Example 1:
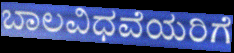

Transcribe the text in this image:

ಬಾಲವಿಧವೆಯರಿಗೆ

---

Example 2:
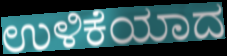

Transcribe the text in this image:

ಉಳಿಕೆಯಾದ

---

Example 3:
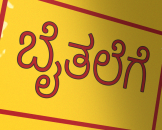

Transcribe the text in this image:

ಬೈತಲೆಗೆ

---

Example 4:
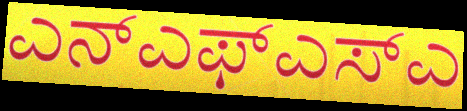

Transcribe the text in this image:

ಎನ್ಎಫ್ಎಸ್ಎ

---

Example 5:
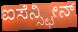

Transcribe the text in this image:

ಐಸೆನ್ಸ್ಟೀನ್